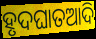
ହୃଦଘାତଆଦି